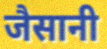
जैसानी